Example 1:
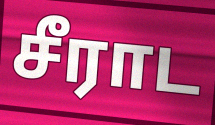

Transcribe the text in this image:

சீராட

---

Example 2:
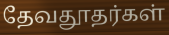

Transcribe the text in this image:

தேவதூதர்கள்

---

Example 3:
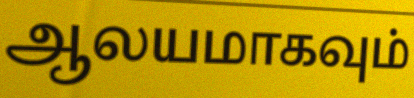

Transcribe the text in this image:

ஆலயமாகவும்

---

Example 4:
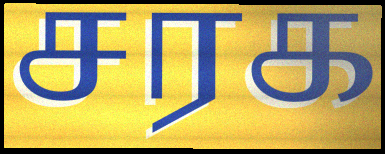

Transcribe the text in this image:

சரக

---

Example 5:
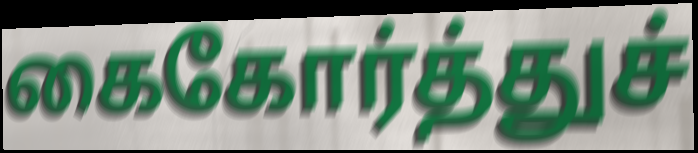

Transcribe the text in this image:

கைகோர்த்துச்